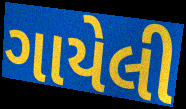
ગાયેલી